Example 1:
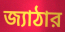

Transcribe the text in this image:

জ্যাঠার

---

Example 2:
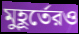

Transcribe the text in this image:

মুহূর্তেরও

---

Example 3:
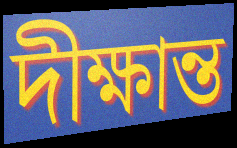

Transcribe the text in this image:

দীক্ষান্ত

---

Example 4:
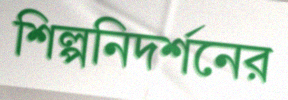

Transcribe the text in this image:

শিল্পনিদর্শনের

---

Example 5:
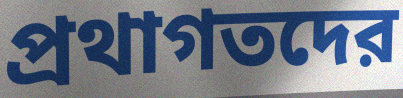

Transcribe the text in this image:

প্রথাগতদের